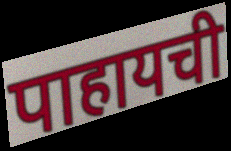
पाहायची